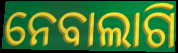
ନେବାଲାଗି